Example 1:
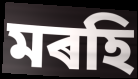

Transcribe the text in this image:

মৰহি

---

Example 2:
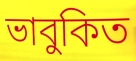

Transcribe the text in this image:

ভাবুকিত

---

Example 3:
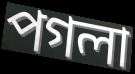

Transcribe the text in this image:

পগলা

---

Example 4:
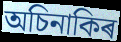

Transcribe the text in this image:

অচিনাকিৰ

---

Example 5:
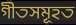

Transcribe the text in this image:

গীতসমূহত